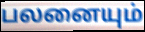
பலனையும்